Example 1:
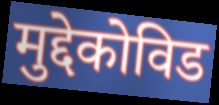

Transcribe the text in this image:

मुद्देकोविड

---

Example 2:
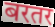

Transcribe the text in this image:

बरतर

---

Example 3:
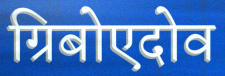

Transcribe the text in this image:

ग्रिबोएदोव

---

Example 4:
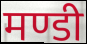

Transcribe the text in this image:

मण्डी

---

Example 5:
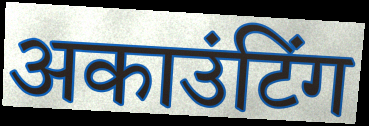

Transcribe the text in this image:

अकाउंटिंग